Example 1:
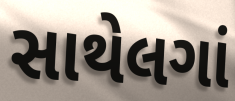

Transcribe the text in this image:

સાથેલગાં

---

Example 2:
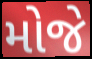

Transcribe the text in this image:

મોજે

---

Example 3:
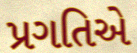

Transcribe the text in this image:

પ્રગતિએ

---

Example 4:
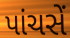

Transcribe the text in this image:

પાંચસેં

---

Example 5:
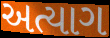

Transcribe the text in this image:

અત્યાગ